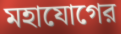
মহাযোগের